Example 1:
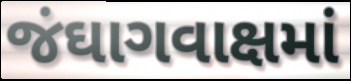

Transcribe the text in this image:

જંઘાગવાક્ષમાં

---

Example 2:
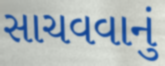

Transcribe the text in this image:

સાચવવાનું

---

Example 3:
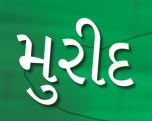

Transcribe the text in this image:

મુરીદ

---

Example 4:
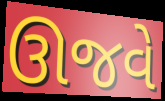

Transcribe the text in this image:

ઊજવે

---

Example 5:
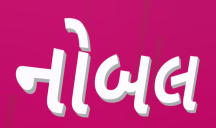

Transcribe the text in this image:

નોબલ